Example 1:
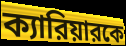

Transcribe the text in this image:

ক্যারিয়ারকে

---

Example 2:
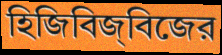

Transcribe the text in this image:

হিজিবিজ্‌বিজের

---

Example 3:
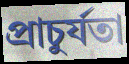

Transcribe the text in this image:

প্রাচুর্যতা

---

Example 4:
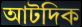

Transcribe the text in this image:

আটদিক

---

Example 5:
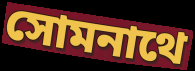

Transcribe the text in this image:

সোমনাথে